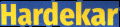
Hardekar